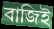
বাজিই